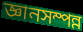
জ্ঞানসম্পন্ন